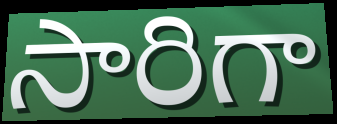
సారిగా